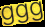
ggg